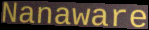
Nanaware